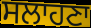
ਸਲਾਹਣਾ